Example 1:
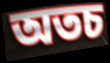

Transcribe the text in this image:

অতচ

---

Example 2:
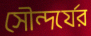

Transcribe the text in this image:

সৌন্দর্যের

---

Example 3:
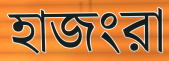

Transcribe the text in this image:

হাজংরা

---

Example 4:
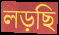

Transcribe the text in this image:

লড়ছি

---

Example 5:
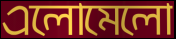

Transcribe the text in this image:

এলোমেলো